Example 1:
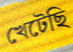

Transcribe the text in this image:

খেটেছি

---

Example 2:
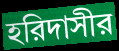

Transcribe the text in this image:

হরিদাসীর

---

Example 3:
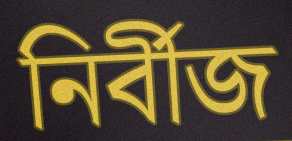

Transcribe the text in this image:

নির্বীজ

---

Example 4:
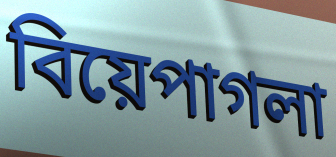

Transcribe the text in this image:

বিয়েপাগলা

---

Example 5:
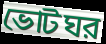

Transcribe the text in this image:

ভোটঘর